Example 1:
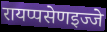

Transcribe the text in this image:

रायप्पसेणइज्जे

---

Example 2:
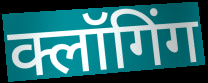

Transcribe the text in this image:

क्लॉगिंग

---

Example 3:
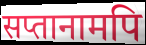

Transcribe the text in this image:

सप्तानामपि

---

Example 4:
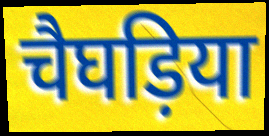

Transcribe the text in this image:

चैघड़िया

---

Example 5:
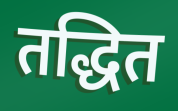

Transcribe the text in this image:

तद्धित